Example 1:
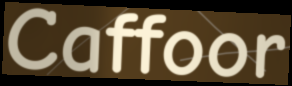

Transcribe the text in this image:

Caffoor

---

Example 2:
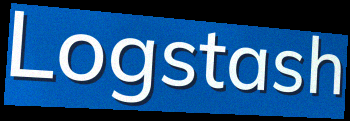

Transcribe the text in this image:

Logstash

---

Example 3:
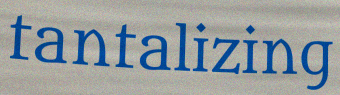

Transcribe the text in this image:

tantalizing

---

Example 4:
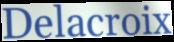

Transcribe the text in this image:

Delacroix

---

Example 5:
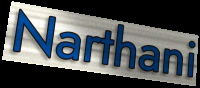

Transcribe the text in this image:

Narthani